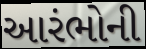
આરંભોની